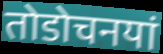
तोडोचनयां